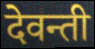
देवन्ती